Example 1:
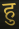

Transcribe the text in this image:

हु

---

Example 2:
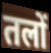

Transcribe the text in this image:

तलों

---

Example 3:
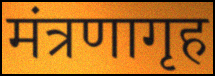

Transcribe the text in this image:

मंत्रणागृह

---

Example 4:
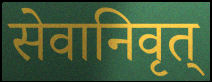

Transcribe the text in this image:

सेवानिवृत्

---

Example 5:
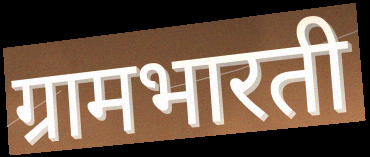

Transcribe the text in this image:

ग्रामभारती